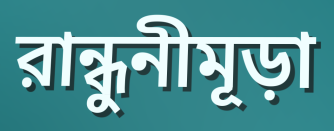
রান্ধুনীমূড়া